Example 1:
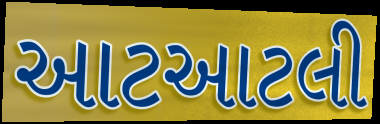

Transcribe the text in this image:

આટઆટલી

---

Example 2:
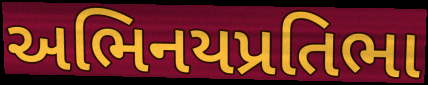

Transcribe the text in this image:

અભિનયપ્રતિભા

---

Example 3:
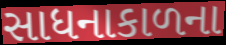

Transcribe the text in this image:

સાધનાકાળના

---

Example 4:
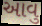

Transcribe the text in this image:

આવુ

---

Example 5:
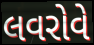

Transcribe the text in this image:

લવરોવે